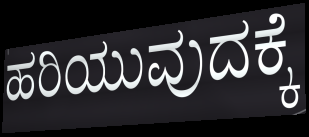
ಹರಿಯುವುದಕ್ಕೆ